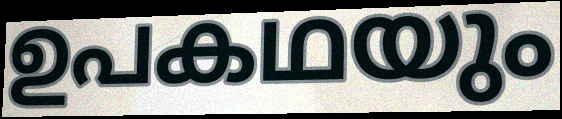
ഉപകഥയും